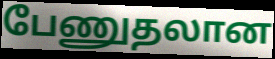
பேணுதலான